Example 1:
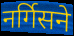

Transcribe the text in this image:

नर्गिसने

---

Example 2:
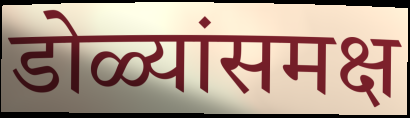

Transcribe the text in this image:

डोळ्यांसमक्ष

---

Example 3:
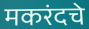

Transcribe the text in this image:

मकरंदचे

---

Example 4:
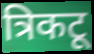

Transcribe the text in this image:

त्रिकटू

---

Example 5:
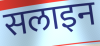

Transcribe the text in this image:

सलाइन